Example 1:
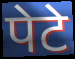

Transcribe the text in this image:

पेटे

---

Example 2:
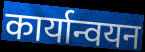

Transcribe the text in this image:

कार्यान्वयन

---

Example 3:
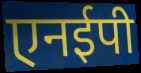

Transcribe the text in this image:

एनईपी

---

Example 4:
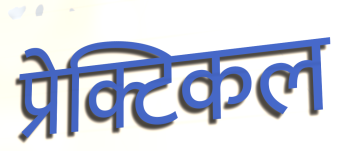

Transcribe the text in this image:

प्रेक्टिकल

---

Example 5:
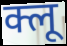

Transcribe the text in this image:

क्लू